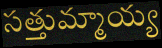
సత్తుమ్మాయ్య